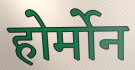
होर्मोन